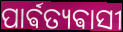
ପାର୍ଵତ୍ୟଵାସୀ